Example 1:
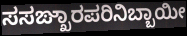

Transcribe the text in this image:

ಸಸಙ್ಖಾರಪರಿನಿಬ್ಬಾಯೀ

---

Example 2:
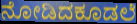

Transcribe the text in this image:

ನೋಡಿದಕೂಡಲೆ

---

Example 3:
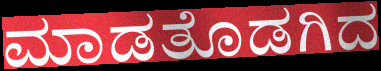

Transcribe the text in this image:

ಮಾಡತೊಡಗಿದ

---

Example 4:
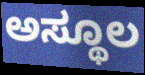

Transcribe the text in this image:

ಅಸ್ಥೂಲ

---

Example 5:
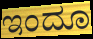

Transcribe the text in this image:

ಇಂದೂ